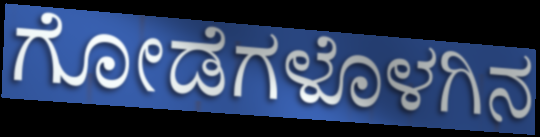
ಗೋಡೆಗಳೊಳಗಿನ